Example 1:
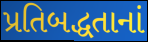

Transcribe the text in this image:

પ્રતિબદ્ધતાનાં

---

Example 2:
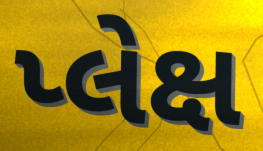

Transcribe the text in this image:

પ્લેક્ષ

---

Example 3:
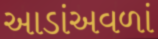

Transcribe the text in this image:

આડાંઅવળાં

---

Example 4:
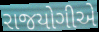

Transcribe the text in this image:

રાજયોગીએ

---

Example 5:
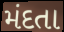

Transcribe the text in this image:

મંદતા